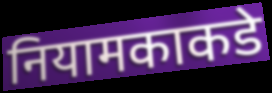
नियामकाकडे